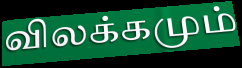
விலக்கமும்